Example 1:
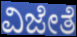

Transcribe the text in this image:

ವಿಜೇತೆ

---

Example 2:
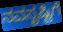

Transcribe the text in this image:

ನವಸೃಷ್ಟಿಗೆ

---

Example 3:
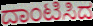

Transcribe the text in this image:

ದಾಂಟಿಸಿದ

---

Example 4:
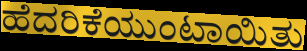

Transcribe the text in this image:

ಹೆದರಿಕೆಯುಂಟಾಯಿತು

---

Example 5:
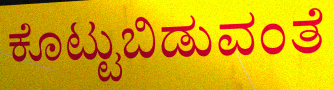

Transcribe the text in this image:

ಕೊಟ್ಟುಬಿಡುವಂತೆ